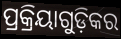
ପ୍ରକ୍ରିୟାଗୁଡ଼ିକର